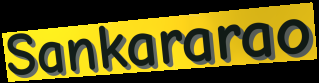
Sankararao